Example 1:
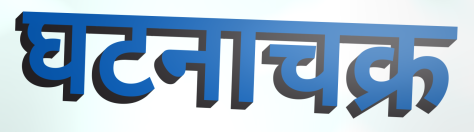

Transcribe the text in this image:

घटनाचक्र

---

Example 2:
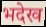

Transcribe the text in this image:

भदेख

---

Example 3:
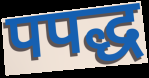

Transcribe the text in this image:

पपद्ध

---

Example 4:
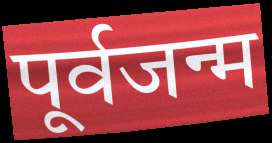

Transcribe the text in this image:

पूर्वजन्म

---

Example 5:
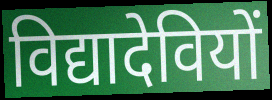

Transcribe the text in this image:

विद्यादेवियों